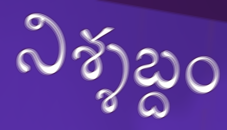
నిశ్శబ్దం